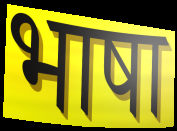
भाषा